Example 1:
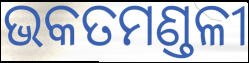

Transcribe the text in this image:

ଭକତମଣ୍ଡଳୀ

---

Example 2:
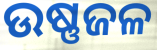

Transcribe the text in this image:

ଉଷ୍ଣଜଳ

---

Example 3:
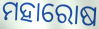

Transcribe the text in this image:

ମହାରୋଷ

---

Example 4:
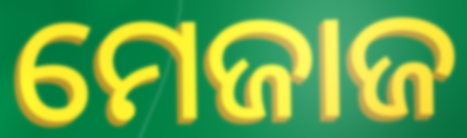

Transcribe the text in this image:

ମେଜାଜ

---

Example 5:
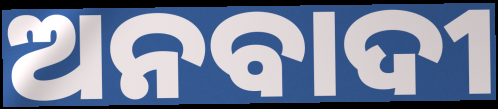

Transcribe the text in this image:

ଅନବାଦୀ